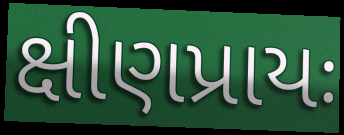
ક્ષીણપ્રાયઃ